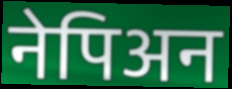
नेपिअन